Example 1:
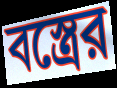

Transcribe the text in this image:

বস্ত্রের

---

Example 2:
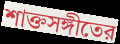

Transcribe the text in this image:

শাক্তসঙ্গীতের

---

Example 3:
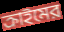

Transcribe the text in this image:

ক্রাইমের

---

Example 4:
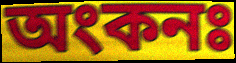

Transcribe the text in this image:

অংকনঃ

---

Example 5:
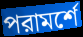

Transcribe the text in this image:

পরামর্শে